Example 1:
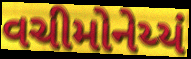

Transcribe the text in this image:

વચીમોનેય્યં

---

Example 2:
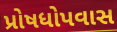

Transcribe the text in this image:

પ્રોષધોપવાસ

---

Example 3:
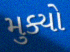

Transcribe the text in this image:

મુક્યો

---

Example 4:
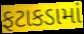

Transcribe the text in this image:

ફટાકડામાં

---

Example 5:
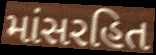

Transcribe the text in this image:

માંસરહિત